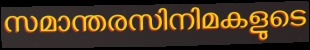
സമാന്തരസിനിമകളുടെ